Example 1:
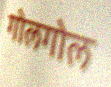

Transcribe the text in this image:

गोलगोल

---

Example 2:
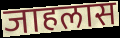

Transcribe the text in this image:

जाहलास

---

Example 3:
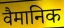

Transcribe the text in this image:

वैमानिक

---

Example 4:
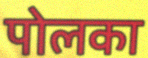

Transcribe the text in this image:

पोलका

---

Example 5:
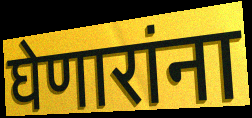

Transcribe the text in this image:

घेणारांना